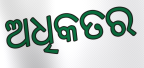
ଅଧିକତର